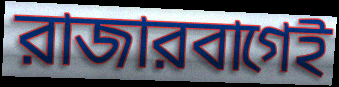
রাজারবাগেই